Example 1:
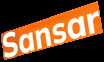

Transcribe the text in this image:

Sansar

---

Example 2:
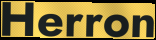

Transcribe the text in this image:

Herron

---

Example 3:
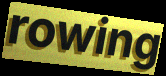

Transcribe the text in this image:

rowing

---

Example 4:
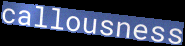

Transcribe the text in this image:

callousness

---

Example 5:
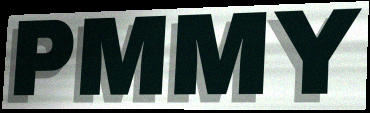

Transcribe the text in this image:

PMMY